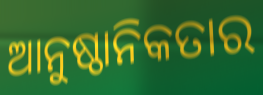
ଆନୁଷ୍ଠାନିକତାର